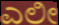
ಎಲೀ